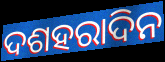
ଦଶହରାଦିନ